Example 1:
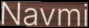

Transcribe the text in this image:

Navmi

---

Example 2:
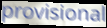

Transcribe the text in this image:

provisional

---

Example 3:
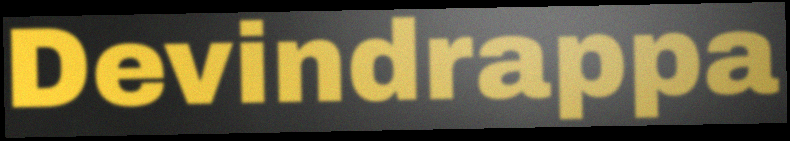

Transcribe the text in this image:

Devindrappa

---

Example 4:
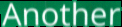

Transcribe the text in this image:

Another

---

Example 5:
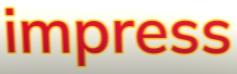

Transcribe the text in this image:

impress